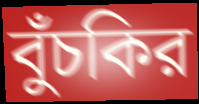
বুঁচকির